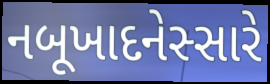
નબૂખાદનેસ્સારે